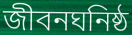
জীবনঘনিষ্ঠ